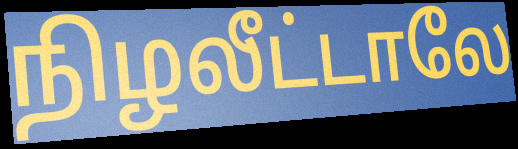
நிழலீட்டாலே